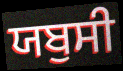
ਯਬੁਸੀ